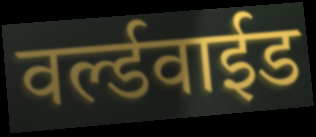
वर्ल्डवाईड